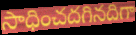
సాధించదగినదిగా